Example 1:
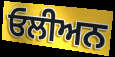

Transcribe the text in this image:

ਓਲੀਅਨ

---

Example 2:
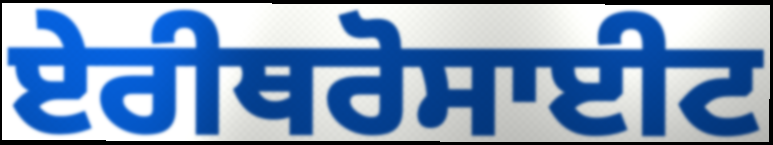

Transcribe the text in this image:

ਏਰੀਥਰੋਸਾਈਟ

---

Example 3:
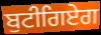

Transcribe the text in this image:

ਬੁਟੀਗਿਏਗ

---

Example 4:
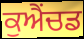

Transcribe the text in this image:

ਕੁਐਂਚਡ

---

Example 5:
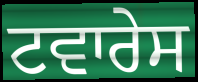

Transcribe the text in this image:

ਟਵਾਰੇਸ